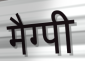
मैग्पी